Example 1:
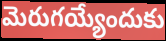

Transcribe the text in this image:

మెరుగయ్యేందుకు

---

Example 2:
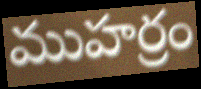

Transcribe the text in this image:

ముహర్రం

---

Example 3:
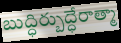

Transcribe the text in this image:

బుద్ధిర్బుద్ధేరాత్మా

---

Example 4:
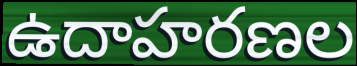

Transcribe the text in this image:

ఉదాహరణల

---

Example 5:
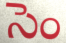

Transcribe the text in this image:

సెం